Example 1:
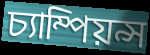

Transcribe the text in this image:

চ্যাম্পিয়ন্স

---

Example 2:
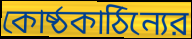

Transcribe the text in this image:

কোষ্ঠকাঠিন্যের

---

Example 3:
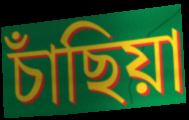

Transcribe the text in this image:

চাঁছিয়া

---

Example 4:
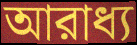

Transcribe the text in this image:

আরাধ্য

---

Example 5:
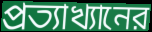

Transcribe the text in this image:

প্রত্যাখ্যানের